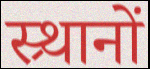
स्र्थानों